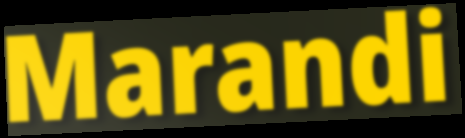
Marandi